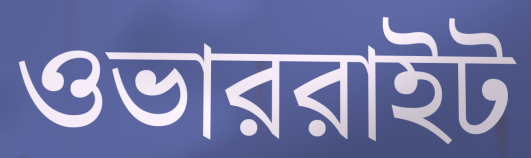
ওভাররাইট